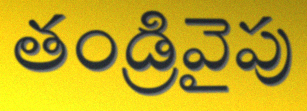
తండ్రివైపు